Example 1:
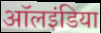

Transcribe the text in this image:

ऑलइंडिया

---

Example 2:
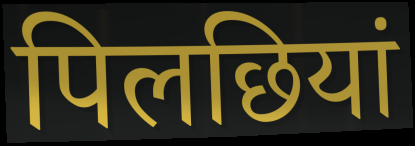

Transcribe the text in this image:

पिलछियां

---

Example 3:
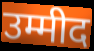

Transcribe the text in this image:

उम्‍मीद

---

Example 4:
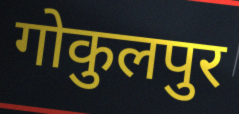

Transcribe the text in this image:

गोकुलपुर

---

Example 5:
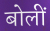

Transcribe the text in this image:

बोलीं